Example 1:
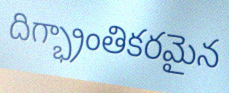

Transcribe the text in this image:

దిగ్భ్రాంతికరమైన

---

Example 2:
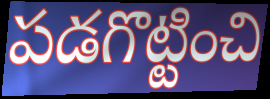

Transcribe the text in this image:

పడగొట్టించి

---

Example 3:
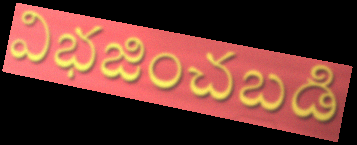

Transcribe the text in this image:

విభజించబడి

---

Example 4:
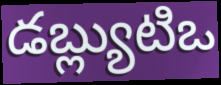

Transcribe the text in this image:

డబ్ల్యుటిఒ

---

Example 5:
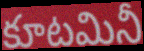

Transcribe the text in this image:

కూటమినీ